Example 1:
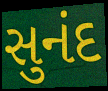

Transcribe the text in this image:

સુનંદ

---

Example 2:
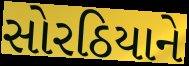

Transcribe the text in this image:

સોરઠિયાને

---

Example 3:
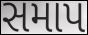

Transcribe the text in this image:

સમાપ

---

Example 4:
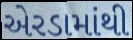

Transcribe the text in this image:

એરડામાંથી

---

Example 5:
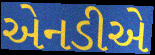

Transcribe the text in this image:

એનડીએ